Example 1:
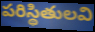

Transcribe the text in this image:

పరిస్థితులవి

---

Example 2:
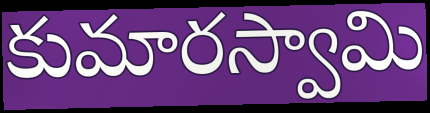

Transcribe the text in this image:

కుమారస్వామి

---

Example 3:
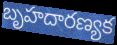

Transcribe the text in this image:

బృహదారణ్యక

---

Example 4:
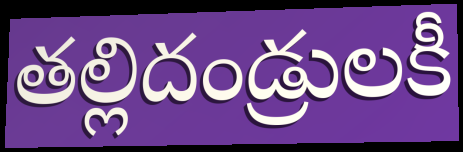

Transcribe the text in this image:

తల్లిదండ్రులకీ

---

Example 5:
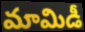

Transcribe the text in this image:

మామిడీ